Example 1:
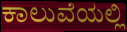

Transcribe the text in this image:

ಕಾಲುವೆಯಲ್ಲಿ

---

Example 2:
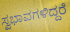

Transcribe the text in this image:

ಸ್ವಭಾವಗಳಿದ್ದರೆ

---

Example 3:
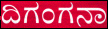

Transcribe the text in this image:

ದಿಗಂಗನಾ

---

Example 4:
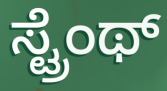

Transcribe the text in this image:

ಸ್ಟ್ರೆಂಥ್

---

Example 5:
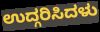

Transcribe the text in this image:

ಉದ್ಗರಿಸಿದಳು